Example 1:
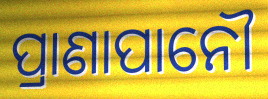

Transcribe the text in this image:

ପ୍ରାଣାପାନୌ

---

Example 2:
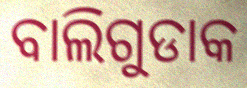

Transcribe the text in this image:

ବାଲିଗୁଡାକ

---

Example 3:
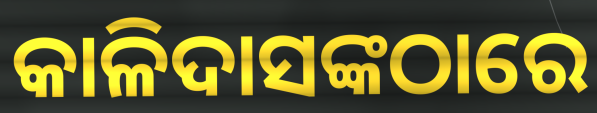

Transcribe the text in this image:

କାଳିଦାସଙ୍କଠାରେ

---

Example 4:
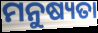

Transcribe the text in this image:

ମନୁଷ୍ୟତା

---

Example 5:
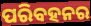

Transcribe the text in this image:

ପରିବହନର